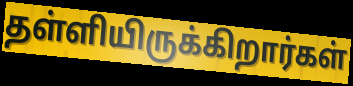
தள்ளியிருக்கிறார்கள்